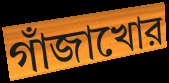
গাঁজাখোর